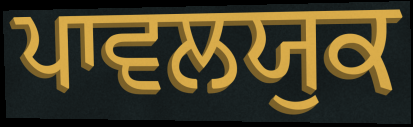
ਪਾਵਲਯੁਕ